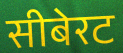
सीबेरट